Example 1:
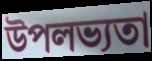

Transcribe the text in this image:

উপলভ্যতা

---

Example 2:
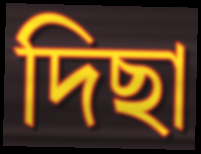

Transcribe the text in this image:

দিছা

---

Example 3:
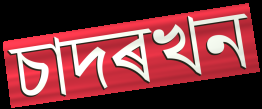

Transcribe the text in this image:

চাদৰখন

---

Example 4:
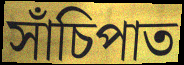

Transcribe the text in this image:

সাঁচিপাত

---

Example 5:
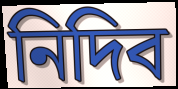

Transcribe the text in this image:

নিদিব